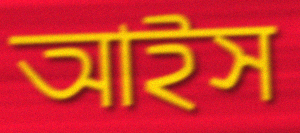
আইস